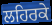
ਲਹਿਰਕੇ